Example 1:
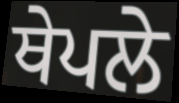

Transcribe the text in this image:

ਥੇਪਲੇ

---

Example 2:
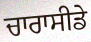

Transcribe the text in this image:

ਚਾਰਾਸੀਡੇ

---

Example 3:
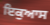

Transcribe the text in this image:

ਇਕੁਆਸ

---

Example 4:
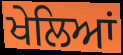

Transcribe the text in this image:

ਖੇਲਿਆਂ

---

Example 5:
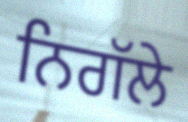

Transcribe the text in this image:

ਨਿਗੱਲੇ